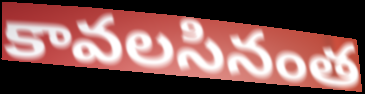
కావలసినంత